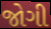
જોગી